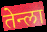
तेन्ला